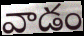
వాడం